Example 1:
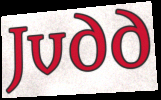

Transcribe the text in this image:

Judd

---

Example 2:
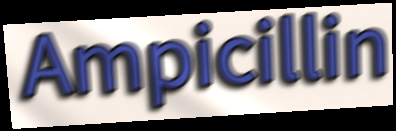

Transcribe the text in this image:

Ampicillin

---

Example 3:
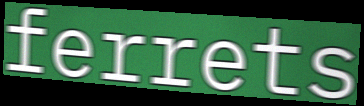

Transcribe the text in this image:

ferrets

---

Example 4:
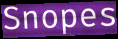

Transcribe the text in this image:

Snopes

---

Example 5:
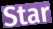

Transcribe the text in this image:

Star